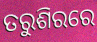
ତରୁଶିରରେ